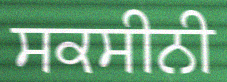
ਸਕਸੀਨੀ